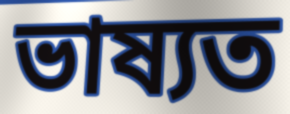
ভাষ্যত